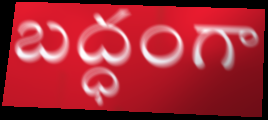
బద్ధంగా